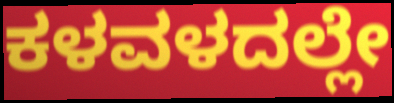
ಕಳವಳದಲ್ಲೇ